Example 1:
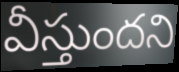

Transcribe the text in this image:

వీస్తుందని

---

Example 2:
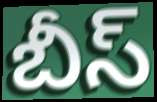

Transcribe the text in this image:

బీస్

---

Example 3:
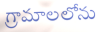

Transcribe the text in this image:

గ్రామాలలోను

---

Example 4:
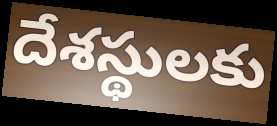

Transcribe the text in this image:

దేశస్థులకు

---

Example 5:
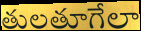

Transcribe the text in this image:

తులతూగేలా